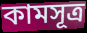
কামসূত্ৰ